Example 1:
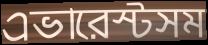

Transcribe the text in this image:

এভারেস্টসম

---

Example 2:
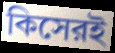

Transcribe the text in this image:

কিসেরই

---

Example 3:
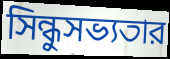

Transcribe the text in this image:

সিন্ধুসভ্যতার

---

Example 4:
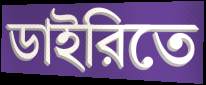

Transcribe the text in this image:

ডাইরিতে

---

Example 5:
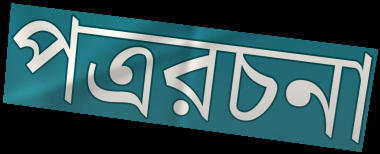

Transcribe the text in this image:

পত্ররচনা